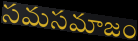
సమసమాజం